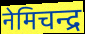
नेमिचन्द्र